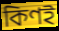
কিণই